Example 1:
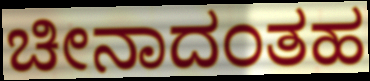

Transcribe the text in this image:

ಚೀನಾದಂತಹ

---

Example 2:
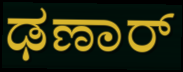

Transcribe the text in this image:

ಢಣಾರ್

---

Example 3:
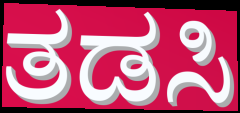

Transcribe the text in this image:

ತಡಸಿ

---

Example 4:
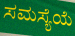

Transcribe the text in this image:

ಸಮಸ್ಯೆಯೆ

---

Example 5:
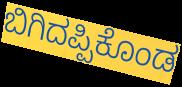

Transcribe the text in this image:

ಬಿಗಿದಪ್ಪಿಕೊಂಡ